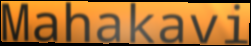
Mahakavi